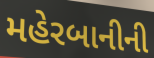
મહેરબાનીની